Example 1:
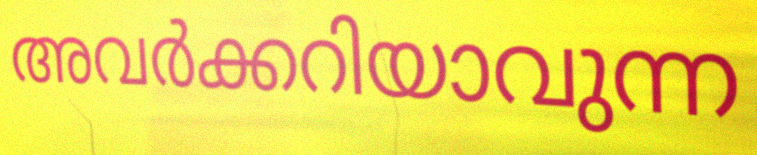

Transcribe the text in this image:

അവർക്കറിയാവുന്ന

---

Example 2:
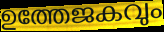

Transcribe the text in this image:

ഉത്തേജകവും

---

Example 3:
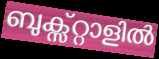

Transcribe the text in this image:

ബുക്സ്റ്റാളിൽ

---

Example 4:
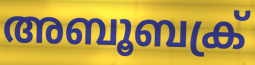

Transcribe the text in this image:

അബൂബക്ര്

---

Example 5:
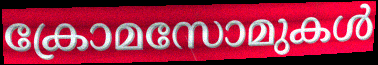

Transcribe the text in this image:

ക്രോമസോമുകൾ